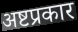
अष्टप्रकार